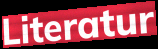
Literatur